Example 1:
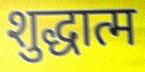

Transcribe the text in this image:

शुद्धात्म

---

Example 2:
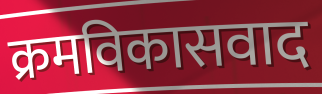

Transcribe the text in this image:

क्रमविकासवाद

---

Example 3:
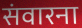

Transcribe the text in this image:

संवारना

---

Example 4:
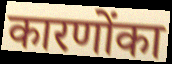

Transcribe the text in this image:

कारणोंका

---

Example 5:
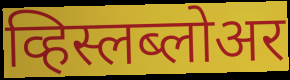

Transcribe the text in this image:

व्हिस्लब्लोअर